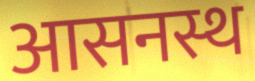
आसनस्थ